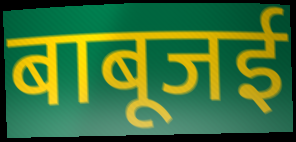
बाबूजई